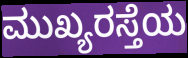
ಮುಖ್ಯರಸ್ತೆಯ